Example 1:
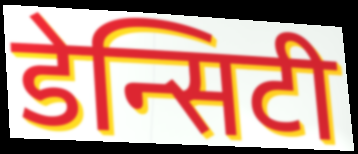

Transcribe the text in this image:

डेन्सिटी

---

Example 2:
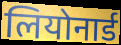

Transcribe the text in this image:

लियोनार्ड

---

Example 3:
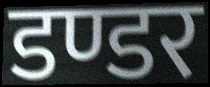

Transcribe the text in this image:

डण्डर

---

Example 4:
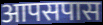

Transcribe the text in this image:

आपसपास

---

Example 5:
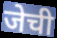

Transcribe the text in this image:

जेची